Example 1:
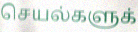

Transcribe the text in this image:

செயல்களுக்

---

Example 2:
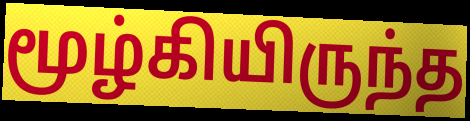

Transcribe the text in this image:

மூழ்கியிருந்த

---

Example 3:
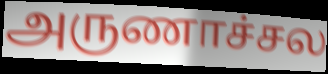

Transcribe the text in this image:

அருணாச்சல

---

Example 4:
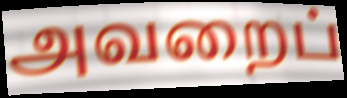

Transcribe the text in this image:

அவறைப்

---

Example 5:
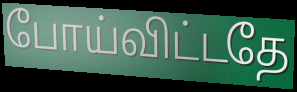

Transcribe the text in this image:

போய்விட்டதே